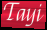
Tayi